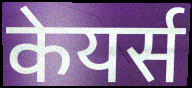
केयर्स